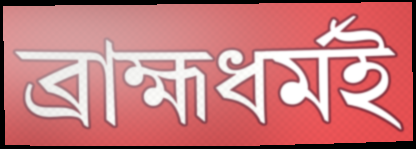
ব্রাহ্মধর্মই